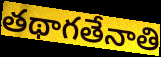
తథాగతేనాతి